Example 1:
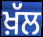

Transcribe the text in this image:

ਖ਼ੱਲ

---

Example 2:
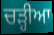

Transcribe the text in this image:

ਚੜ੍ਹੀਆ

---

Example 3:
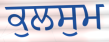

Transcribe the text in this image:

ਕੁਲਸੁਮ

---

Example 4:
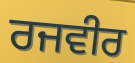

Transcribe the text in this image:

ਰਜਵੀਰ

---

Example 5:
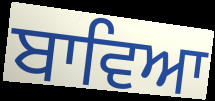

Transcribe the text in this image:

ਬਾਵਿਆ